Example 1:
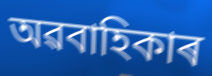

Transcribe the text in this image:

অৱবাহিকাৰ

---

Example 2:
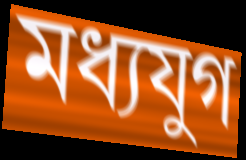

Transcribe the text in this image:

মধ্যযুগ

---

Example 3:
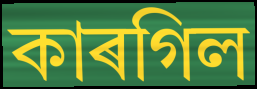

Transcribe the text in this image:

কাৰগিল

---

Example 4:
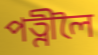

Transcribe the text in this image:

পত্নীলৈ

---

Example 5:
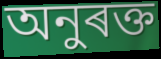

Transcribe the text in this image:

অনুৰক্ত